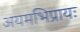
अयमभिप्रायः